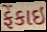
ફેંકાઇ